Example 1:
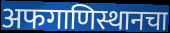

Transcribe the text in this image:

अफगाणिस्थानचा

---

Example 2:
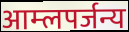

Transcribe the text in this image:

आम्लपर्जन्य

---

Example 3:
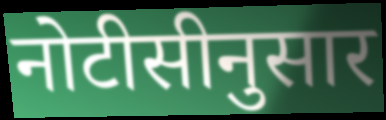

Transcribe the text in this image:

नोटीसीनुसार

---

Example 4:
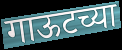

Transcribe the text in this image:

गाऊटच्या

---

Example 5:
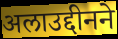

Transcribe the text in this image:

अलाउद्दीनने